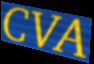
CVA